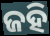
ଜହି